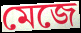
মেজে